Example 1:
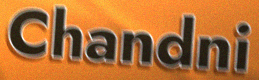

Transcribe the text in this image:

Chandni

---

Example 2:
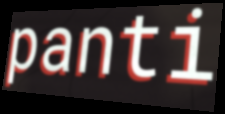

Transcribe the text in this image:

panti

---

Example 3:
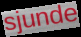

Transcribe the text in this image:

sjunde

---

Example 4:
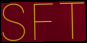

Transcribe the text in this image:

SFT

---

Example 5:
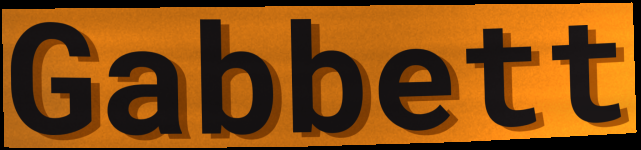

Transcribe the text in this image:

Gabbett